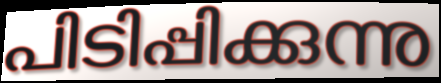
പിടിപ്പിക്കുന്നു